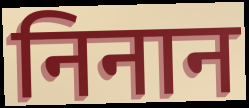
निनान